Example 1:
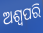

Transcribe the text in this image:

ଅଶ୍ୱପରି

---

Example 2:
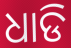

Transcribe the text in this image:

ଧାଡି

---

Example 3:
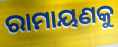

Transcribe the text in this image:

ରାମାୟଣକୁ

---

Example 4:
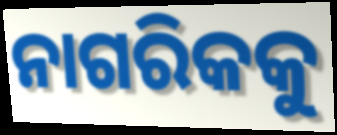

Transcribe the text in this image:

ନାଗରିକକୁ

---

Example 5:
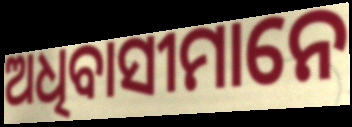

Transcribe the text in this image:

ଅଧିବାସୀମାନେ